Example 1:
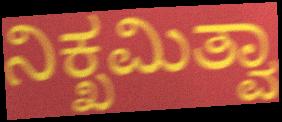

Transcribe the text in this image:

ನಿಕ್ಖಮಿತ್ವಾ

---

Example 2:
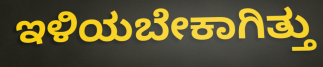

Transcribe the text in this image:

ಇಳಿಯಬೇಕಾಗಿತ್ತು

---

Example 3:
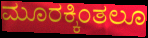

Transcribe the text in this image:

ಮೂರಕ್ಕಿಂತಲೂ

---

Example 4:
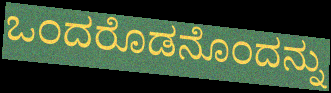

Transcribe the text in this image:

ಒಂದರೊಡನೊಂದನ್ನು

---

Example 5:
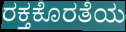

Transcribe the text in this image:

ರಕ್ತಕೊರತೆಯ